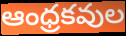
ఆంధ్రకవుల